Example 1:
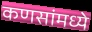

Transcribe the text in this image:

कणसांमध्ये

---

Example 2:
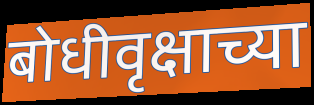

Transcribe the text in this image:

बोधीवृक्षाच्या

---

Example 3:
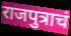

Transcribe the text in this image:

राजपुत्राचं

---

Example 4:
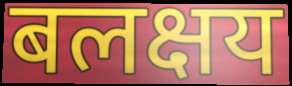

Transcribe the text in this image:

बलक्षय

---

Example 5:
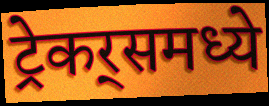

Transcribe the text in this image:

ट्रेकर्समध्ये